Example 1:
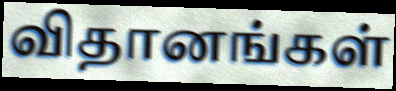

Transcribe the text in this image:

விதானங்கள்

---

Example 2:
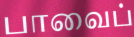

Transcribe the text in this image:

பாவைப்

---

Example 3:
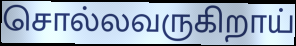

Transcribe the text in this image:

சொல்லவருகிறாய்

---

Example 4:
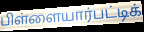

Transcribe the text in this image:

பிள்ளையார்பட்டிக்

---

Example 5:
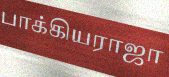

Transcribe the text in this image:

பாக்கியராஜா